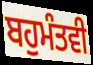
ਬਹੁਮੰਤਵੀ